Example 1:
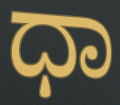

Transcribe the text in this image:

ಧಾ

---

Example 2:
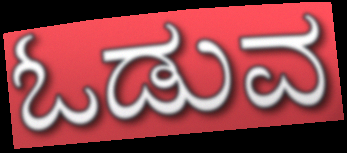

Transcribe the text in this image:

ಓಡುವ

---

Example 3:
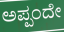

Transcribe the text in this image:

ಅಪ್ಪಂದೇ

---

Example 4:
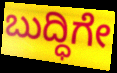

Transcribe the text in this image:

ಬುದ್ಧಿಗೇ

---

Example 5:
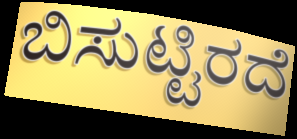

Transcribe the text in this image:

ಬಿಸುಟ್ಟಿರದೆ